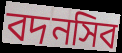
বদনসিব